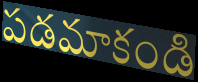
పడమాకండి